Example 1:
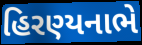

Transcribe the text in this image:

હિરણ્યનાભે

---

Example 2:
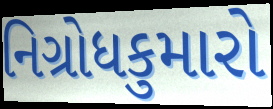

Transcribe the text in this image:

નિગ્રોધકુમારો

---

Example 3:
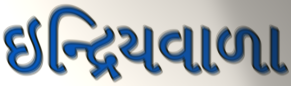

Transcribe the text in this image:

ઇન્દ્રિયવાળા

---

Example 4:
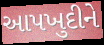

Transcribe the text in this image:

આપખુદીને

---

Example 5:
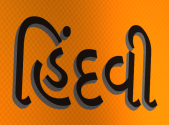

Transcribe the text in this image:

હિંદવી